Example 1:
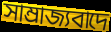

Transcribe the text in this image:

সাম্ৰাজ্যবাদে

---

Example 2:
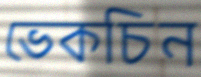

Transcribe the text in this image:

ভেকচিন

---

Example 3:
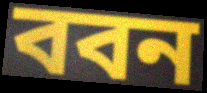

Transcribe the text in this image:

ববন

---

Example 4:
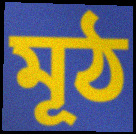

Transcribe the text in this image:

মূঠ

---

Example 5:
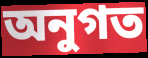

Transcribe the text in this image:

অনুগত